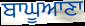
ਬਾਘੂਆਣਾ